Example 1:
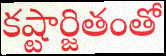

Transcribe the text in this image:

కష్టార్జితంతో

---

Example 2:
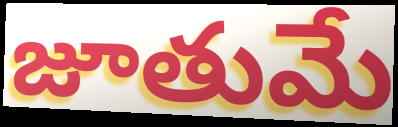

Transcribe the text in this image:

జూతుమే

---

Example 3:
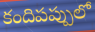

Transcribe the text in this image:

కందిపప్పులో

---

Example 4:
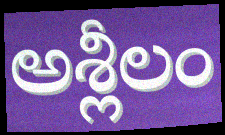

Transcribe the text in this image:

అశ్లీలం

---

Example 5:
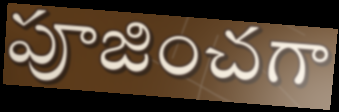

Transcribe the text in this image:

పూజించగా